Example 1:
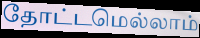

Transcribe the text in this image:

தோட்டமெல்லாம்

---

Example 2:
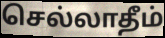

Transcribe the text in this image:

செல்லாதீம்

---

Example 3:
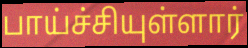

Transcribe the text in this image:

பாய்ச்சியுள்ளார்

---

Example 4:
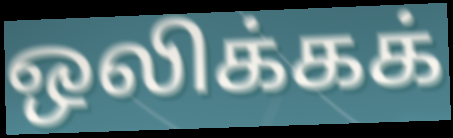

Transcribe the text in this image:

ஒலிக்கக்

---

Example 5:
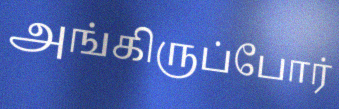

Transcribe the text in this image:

அங்கிருப்போர்